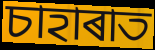
চাহাৰাত